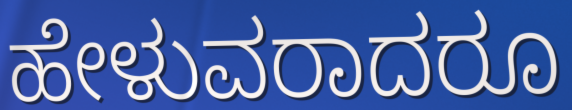
ಹೇಳುವರಾದರೂ